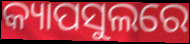
କ୍ୟାପସୁଲରେ